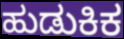
ಹುಡುಕಿಕ